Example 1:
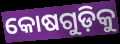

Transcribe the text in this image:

କୋଷଗୁଡ଼ିକୁ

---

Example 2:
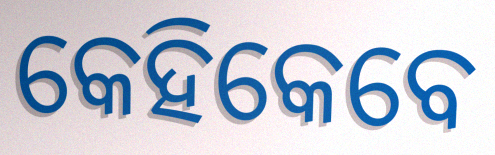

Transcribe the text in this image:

କେହିକେବେ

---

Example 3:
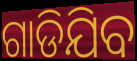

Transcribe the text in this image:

ଗାଡିଯିବ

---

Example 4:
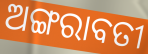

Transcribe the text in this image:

ଅଙ୍ଗରାବତୀ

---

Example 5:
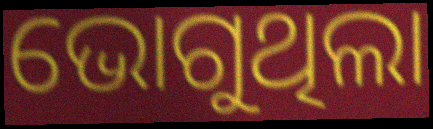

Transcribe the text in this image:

ଭୋଗୁଥିଲା